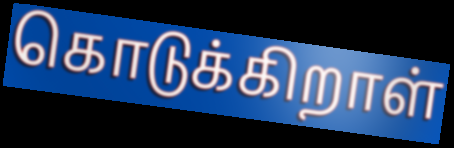
கொடுக்கிறாள்